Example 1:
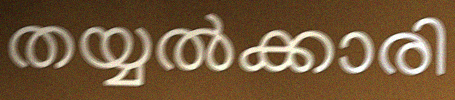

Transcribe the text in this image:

തയ്യൽക്കാരി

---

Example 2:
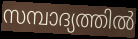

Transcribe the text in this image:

സമ്പാദ്യത്തിൽ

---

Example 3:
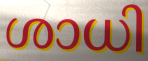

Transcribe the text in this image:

ശാധി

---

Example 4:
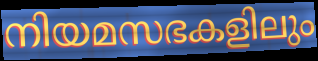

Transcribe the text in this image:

നിയമസഭകളിലും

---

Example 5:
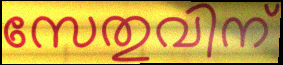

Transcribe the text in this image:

സേതുവിന്